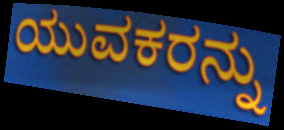
ಯುವಕರನ್ನು